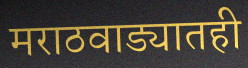
मराठवाड्यातही